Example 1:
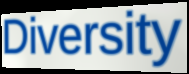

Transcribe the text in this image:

Diversity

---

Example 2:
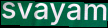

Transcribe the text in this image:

svayam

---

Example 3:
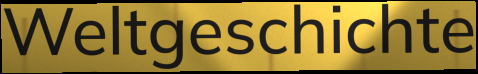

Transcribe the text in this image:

Weltgeschichte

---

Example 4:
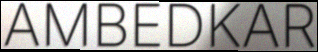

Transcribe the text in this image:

AMBEDKAR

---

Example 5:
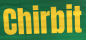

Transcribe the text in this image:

Chirbit